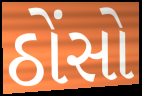
ઠોંસો